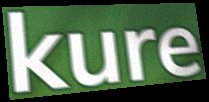
kure